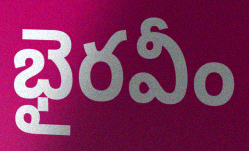
భైరవీం